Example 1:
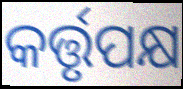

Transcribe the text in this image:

କର୍ତ୍ତୃପକ୍ଷ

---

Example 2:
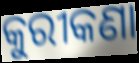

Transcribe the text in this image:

କୁରୀକଣା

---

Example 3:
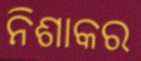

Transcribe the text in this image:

ନିଶାକର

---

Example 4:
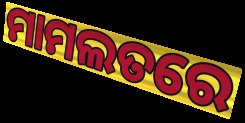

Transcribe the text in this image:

ମାମଲତରେ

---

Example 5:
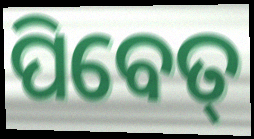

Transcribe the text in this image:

ପିବେତ୍